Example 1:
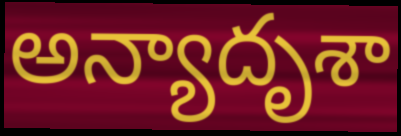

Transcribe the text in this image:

అన్యాదృశా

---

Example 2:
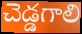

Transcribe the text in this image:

చెడ్డగాలి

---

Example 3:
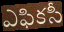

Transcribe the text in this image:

ఎఫికసీ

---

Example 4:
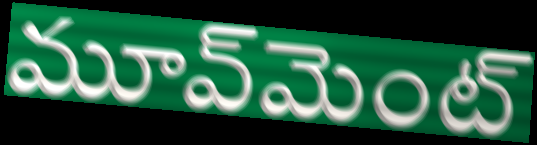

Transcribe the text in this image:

మూవ్‌మెంట్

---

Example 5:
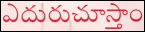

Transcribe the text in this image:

ఎదురుచూస్తాం